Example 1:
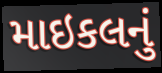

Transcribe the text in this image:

માઇકલનું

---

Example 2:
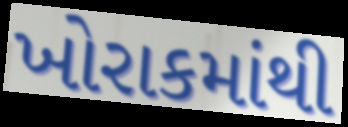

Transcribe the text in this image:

ખોરાકમાંથી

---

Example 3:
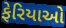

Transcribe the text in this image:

ફેરિયાઓ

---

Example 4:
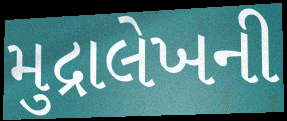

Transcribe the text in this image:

મુદ્રાલેખની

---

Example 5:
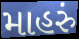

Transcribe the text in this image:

માહરું